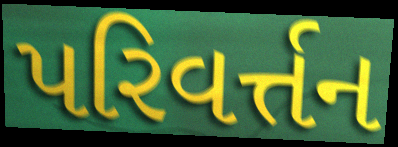
પરિવર્ત્તન